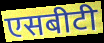
एसबीटी